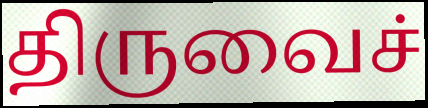
திருவைச்